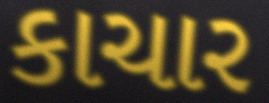
કાચાર